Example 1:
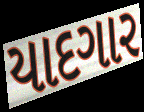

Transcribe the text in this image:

યાદગાર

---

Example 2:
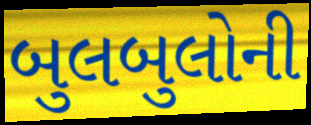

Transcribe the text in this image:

બુલબુલોની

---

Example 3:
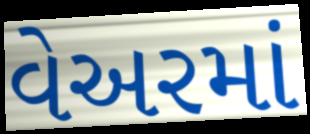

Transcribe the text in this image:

વેઅરમાં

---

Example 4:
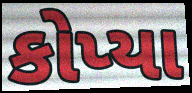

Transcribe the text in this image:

કોપ્યા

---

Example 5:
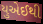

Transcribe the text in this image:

યુએઈથી